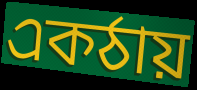
একঠায়